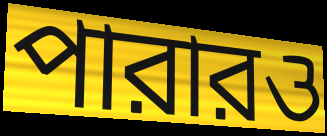
পারারও